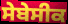
ਸੇਬੇਸੀਕ